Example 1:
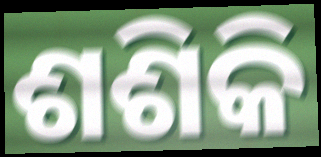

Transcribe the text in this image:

ଶଶିକି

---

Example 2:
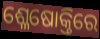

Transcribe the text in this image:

ଶ୍ଳେଷୋକ୍ତିରେ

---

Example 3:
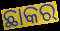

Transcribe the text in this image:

ଛାକର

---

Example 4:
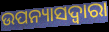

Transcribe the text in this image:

ଉପନ୍ୟାସଦ୍ୱାରା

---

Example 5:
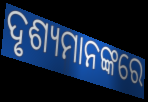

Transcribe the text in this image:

ଦୃଶ୍ୟମାନଙ୍କରେ